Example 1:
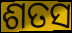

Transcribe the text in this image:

ଶତସ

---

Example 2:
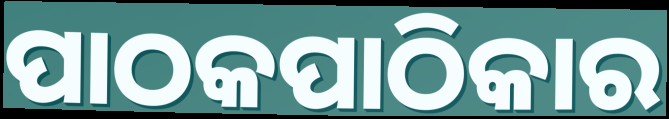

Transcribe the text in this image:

ପାଠକପାଠିକାର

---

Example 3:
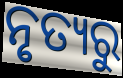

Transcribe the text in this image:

ନୃତ୍ୟରୁ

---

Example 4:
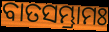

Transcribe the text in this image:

ବାତସମ୍ଭ୍ରାମଃ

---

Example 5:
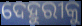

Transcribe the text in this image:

ଦେହୁରୀକୁ